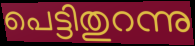
പെട്ടിതുറന്നു